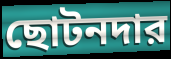
ছোটনদার